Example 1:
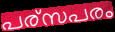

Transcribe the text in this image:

പര്സപരം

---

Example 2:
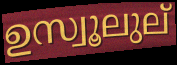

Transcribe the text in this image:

ഉസ്വൂലുല്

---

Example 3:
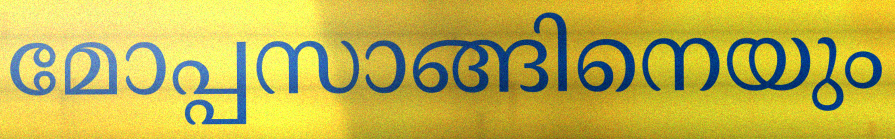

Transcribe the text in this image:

മോപ്പസാങ്ങിനെയും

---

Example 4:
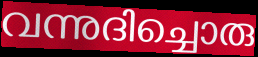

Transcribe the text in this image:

വന്നുദിച്ചൊരു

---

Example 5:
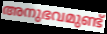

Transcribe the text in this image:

അനുഭവമുണ്ട്